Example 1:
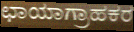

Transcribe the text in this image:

ಛಾಯಾಗ್ರಾಹಕರ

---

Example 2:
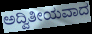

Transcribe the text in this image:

ಅದ್ವಿತೀಯವಾದ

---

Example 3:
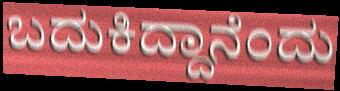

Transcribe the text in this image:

ಬದುಕಿದ್ದಾನೆಂದು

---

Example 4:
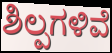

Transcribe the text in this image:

ಶಿಲ್ಪಗಳಿವೆ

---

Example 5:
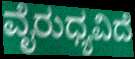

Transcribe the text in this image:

ವೈರುಧ್ಯವಿದೆ